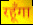
रहूँगा